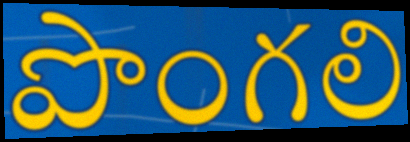
పొంగలి